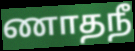
ணாதநீ